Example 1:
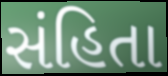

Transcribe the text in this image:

સંહિતા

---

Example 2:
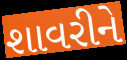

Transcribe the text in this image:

શાવરીને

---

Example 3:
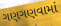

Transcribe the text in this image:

ગણગણવામાં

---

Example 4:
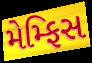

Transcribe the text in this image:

મેમ્ફિસ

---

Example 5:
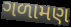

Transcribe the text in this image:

ગળામણ